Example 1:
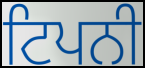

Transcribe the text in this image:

ਟਿਪਨੀ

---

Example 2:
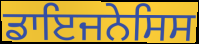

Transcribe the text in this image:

ਡਾਇਜਨੇਸਿਸ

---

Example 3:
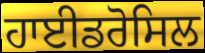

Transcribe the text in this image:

ਹਾਈਡਰੋਸਿਲ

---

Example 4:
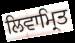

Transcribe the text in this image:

ਲਿਵਾਮ੍ਰਿਤ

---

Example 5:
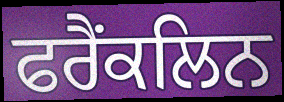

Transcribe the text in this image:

ਫਰੈਂਕਲਿਨ